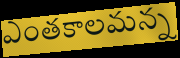
ఎంతకాలమన్న